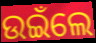
ଉଇଁଲେ